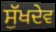
ਸੁੱਖਦੇਵ